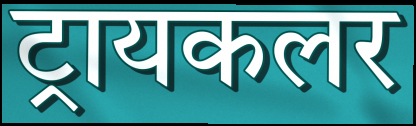
ट्रायकलर